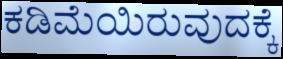
ಕಡಿಮೆಯಿರುವುದಕ್ಕೆ